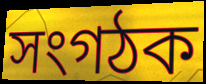
সংগঠক